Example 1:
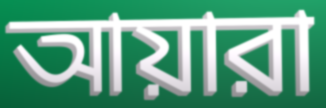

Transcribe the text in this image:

আয়ারা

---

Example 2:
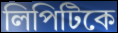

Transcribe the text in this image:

লিপিটিকে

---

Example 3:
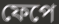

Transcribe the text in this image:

ফেপে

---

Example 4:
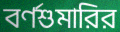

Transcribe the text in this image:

বর্ণশুমারির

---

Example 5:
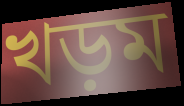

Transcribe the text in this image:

খড়ম